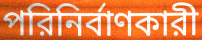
পরিনির্বাণকারী